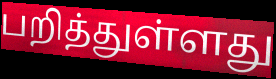
பறித்துள்ளது